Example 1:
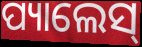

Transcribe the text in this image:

ପ୍ୟାଲେସ୍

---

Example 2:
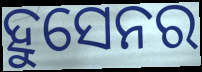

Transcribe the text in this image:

ହୁସେନର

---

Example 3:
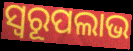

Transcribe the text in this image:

ସ୍ବରୂପଲାଭ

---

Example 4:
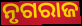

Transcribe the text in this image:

ନୃଗରାଜ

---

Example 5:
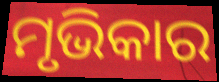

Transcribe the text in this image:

ମୃଭିକାର